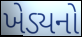
ખેડ્યનો